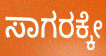
ಸಾಗರಕ್ಕೇ